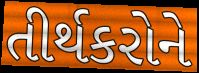
તીર્થકરોને